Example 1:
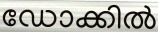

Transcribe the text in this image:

ഡോക്കിൽ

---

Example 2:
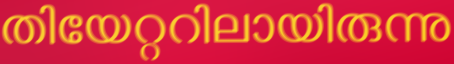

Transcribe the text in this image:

തിയേറ്ററിലായിരുന്നു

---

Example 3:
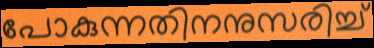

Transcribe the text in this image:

പോകുന്നതിനനുസരിച്ച്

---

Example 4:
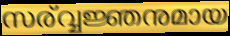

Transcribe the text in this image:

സര്വ്വജ്ഞനുമായ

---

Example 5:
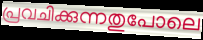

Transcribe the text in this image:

പ്രവചിക്കുന്നതുപോലെ